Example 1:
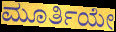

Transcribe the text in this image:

ಮೂರ್ತಿಯೇ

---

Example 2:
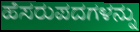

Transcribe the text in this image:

ಹೆಸರುಪದಗಳನ್ನು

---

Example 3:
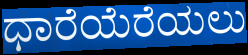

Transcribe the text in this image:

ಧಾರೆಯೆರೆಯಲು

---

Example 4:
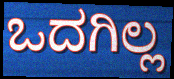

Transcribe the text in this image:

ಒದಗಿಲ್ಲ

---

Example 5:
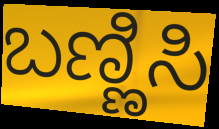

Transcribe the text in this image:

ಬಣ್ಣಿಸಿ